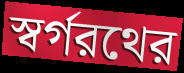
স্বর্গরথের